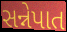
સન્નેપાત